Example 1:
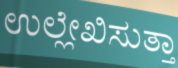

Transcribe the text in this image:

ಉಲ್ಲೇಖಿಸುತ್ತಾ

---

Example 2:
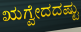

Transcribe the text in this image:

ಋಗ್ವೇದದಷ್ಟು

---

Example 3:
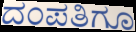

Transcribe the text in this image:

ದಂಪತಿಗೂ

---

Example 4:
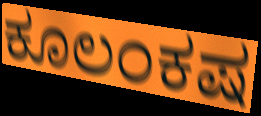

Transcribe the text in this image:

ಕೂಲಂಕಷ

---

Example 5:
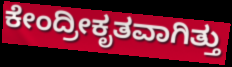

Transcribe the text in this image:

ಕೇಂದ್ರೀಕೃತವಾಗಿತ್ತು